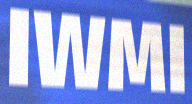
IWMI